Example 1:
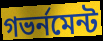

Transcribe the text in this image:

গভর্নমেন্ট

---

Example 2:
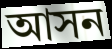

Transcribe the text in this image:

আসন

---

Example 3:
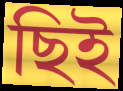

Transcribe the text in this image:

ছিই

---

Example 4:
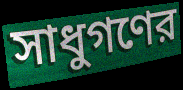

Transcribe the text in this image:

সাধুগণের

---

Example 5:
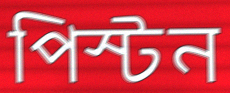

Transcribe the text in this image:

পিস্টন